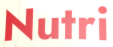
Nutri